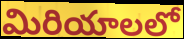
మిరియాలలో